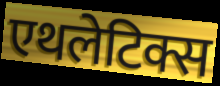
एथलेटिक्स